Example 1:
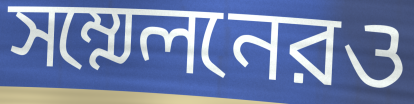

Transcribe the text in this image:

সম্মেলনেরও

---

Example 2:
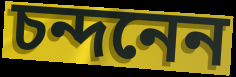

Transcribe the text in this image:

চন্দনেন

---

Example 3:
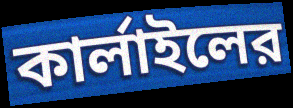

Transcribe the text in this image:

কার্লাইলের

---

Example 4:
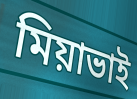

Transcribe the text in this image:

মিয়াভাই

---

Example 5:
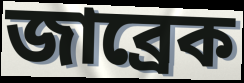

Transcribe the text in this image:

জাব্রেক